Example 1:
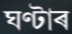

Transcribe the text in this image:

ঘণ্টাৰ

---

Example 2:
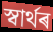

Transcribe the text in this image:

স্বাৰ্থৰ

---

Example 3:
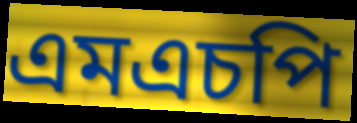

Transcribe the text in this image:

এমএচপি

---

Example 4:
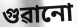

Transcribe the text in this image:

গুৱানো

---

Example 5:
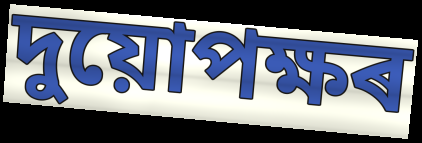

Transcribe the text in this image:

দুয়োপক্ষৰ